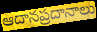
ఆదానప్రదానాలు